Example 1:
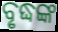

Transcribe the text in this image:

ବୃଦ୍ଧଙ୍କ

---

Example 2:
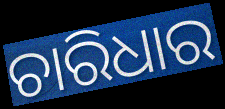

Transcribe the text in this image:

ଚାରିଧାର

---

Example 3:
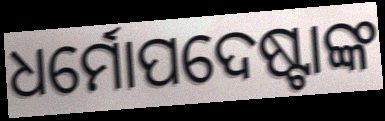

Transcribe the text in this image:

ଧର୍ମୋପଦେଷ୍ଟାଙ୍କ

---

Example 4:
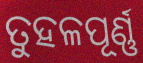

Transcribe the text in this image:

ତୁହଳପୂର୍ଣ୍ଣ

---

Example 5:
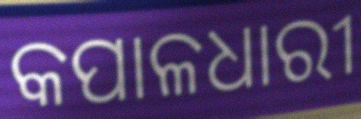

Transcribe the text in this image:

କପାଳଧାରୀ